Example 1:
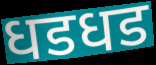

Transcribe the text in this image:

धडधड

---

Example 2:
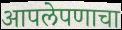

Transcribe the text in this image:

आपलेपणाचा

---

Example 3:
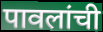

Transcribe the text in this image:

पावलांची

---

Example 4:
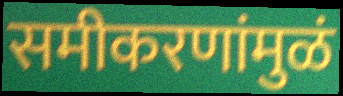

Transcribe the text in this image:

समीकरणांमुळं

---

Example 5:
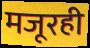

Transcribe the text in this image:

मजूरही